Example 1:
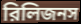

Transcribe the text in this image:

রিলিজনস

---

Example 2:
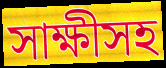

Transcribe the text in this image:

সাক্ষীসহ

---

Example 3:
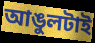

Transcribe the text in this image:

আঙুলটাই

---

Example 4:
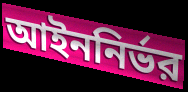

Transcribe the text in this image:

আইননির্ভর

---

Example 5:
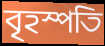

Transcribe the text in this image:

বৃহস্পতি